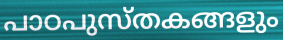
പാഠപുസ്തകങ്ങളും